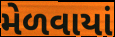
મેળવાયાં